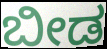
ಬೀಡ